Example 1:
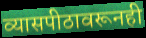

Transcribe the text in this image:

व्यासपीठावरूनही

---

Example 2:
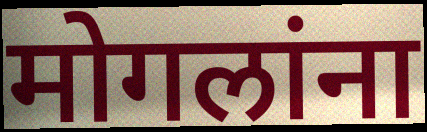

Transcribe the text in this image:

मोगलांना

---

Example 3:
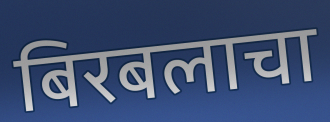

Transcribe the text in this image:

बिरबलाचा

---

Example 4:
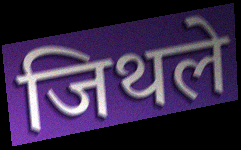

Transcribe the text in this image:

जिथले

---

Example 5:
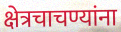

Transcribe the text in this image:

क्षेत्रचाचण्यांना